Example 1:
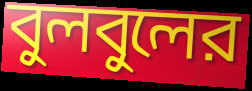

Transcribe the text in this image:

বুলবুলের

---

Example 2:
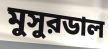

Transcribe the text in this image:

মুসুরডাল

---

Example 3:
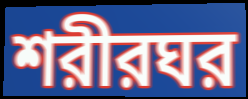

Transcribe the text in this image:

শরীরঘর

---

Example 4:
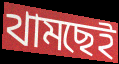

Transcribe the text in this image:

থামছেই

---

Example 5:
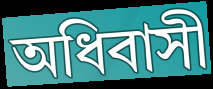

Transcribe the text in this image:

অধিবাসী